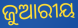
ଜୁଆରୀୟ